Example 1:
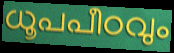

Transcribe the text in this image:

ധൂപപീഠവും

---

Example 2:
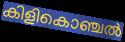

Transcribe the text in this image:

കിളികൊഞ്ചൽ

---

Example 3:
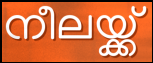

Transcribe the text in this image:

നീലയ്ക്ക്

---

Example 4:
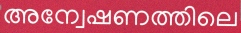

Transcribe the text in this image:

അന്വേഷണത്തിലെ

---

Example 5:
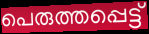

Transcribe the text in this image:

പെരുത്തപ്പെട്ട്